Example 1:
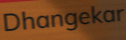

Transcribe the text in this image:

Dhangekar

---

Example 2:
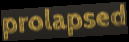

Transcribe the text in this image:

prolapsed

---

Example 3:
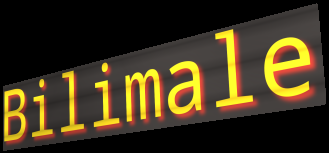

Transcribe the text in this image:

Bilimale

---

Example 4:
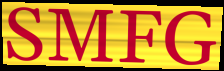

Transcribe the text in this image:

SMFG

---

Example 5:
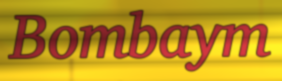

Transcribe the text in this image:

Bombaym